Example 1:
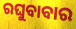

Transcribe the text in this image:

ରଘୁବାବାର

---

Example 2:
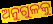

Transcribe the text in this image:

ଅନୁଗୁଳକୁ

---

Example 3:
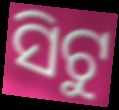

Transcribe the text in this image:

ସିଟୁ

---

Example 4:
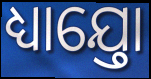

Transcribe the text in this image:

ଧ୍ୟାଯ୍ତୋ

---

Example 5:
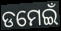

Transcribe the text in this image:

ଡମେଇଁ